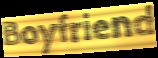
Boyfriend